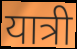
यात्री